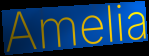
Amelia